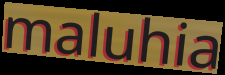
maluhia